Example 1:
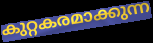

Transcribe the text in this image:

കുറ്റകരമാക്കുന്ന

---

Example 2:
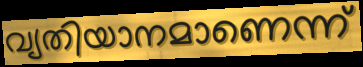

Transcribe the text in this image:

വ്യതിയാനമാണെന്ന്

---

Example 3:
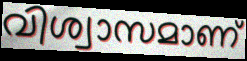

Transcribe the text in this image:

വിശ്വാസമാണ്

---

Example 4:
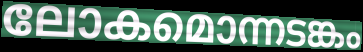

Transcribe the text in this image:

ലോകമൊന്നടങ്കം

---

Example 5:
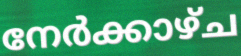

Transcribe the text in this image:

നേർക്കാഴ്ച